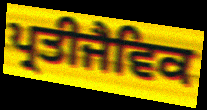
ਪ੍ਰਤੀਜੈਵਿਕ